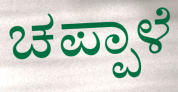
ಚಪ್ಪಾಳೆ